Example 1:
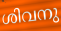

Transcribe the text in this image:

ശിവനു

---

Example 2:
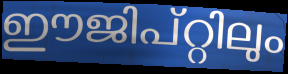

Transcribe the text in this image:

ഈജിപ്റ്റിലും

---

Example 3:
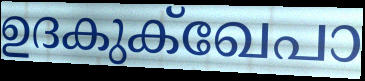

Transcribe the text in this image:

ഉദകുക്ഖേപാ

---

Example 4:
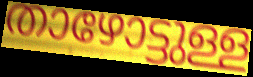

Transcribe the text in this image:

താഴോട്ടുള്ള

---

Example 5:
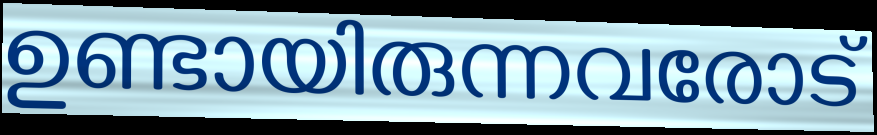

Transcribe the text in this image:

ഉണ്ടായിരുന്നവരോട്